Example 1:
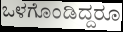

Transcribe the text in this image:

ಒಳಗೊಂಡಿದ್ದರೂ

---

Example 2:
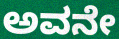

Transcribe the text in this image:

ಅವನೇ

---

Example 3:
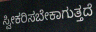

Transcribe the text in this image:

ಸ್ವೀಕರಿಸಬೇಕಾಗುತ್ತದೆ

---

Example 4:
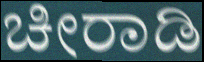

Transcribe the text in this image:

ಚೀರಾಡಿ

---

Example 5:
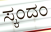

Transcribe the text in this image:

ಸ್ಕಂದಂ